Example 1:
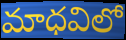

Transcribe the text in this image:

మాధవిలో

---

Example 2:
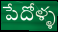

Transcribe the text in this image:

పేదోళ్ళ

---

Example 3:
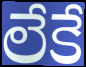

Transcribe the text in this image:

లేకే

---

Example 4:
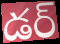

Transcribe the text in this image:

డర్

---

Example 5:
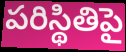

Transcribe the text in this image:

పరిస్థితిపై